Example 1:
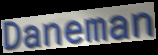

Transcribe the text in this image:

Daneman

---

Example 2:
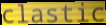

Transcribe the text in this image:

clastic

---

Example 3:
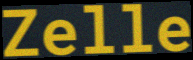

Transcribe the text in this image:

Zelle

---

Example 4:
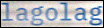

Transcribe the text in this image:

lagolag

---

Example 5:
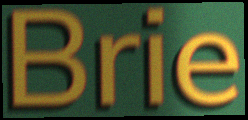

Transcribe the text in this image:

Brie